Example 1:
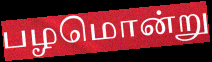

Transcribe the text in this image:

பழமொன்று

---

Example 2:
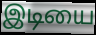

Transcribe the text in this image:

இடியை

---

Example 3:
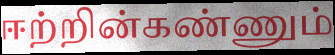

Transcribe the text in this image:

ஈற்றின்கண்ணும்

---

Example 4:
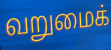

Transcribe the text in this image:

வறுமைக்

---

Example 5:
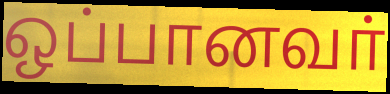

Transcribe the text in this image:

ஒப்பானவர்